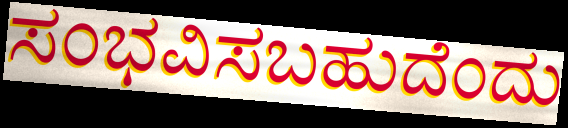
ಸಂಭವಿಸಬಹುದೆಂದು